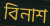
বিনাশ